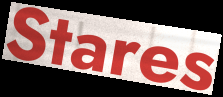
Stares